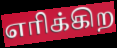
எரிக்கிற